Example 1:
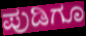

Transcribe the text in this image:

ಪುಡಿಗೂ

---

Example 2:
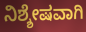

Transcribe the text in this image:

ನಿಶ್ಶೇಷವಾಗಿ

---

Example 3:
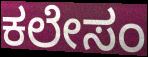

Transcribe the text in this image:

ಕಲೇಸಂ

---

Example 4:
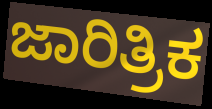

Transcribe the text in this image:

ಜಾರಿತ್ರಿಕ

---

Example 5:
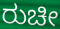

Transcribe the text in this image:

ರುಚೀ